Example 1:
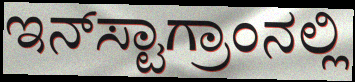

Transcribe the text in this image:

ಇನ್‌ಸ್ಟಾಗ್ರಾಂನಲ್ಲಿ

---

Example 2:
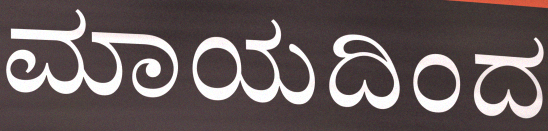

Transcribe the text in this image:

ಮಾಯದಿಂದ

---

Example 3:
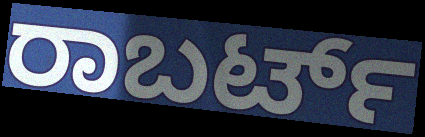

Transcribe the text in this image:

ರಾಬರ್ಟ್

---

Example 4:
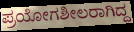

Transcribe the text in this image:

ಪ್ರಯೋಗಶೀಲರಾಗಿದ್ದ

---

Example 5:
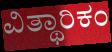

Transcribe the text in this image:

ವಿತ್ಥಾರಿಕಂ